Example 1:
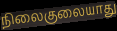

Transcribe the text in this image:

நிலைகுலையாது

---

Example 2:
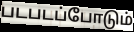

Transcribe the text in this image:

படபடப்போடும்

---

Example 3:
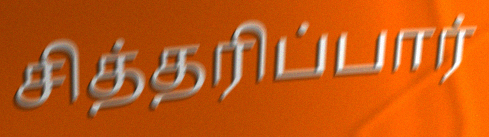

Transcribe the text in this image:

சித்தரிப்பார்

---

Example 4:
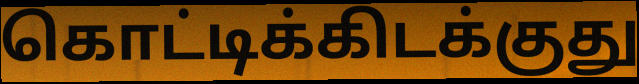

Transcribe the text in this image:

கொட்டிக்கிடக்குது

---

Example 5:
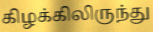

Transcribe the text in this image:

கிழக்கிலிருந்து